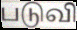
படுவி